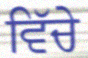
ਵਿੱਚੇ